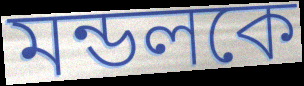
মন্ডলকে